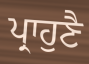
ਪ੍ਰਾਹੁਣੈ